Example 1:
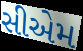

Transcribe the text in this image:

સીએમ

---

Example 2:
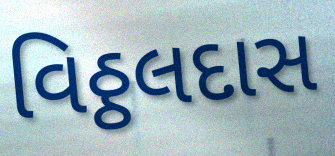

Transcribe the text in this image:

વિઠ્ઠલદાસ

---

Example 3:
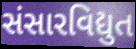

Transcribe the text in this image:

સંસારવિદ્યુત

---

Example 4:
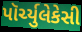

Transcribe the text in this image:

પૉર્ચ્યુલેકેસી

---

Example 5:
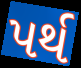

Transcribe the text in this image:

પર્થ